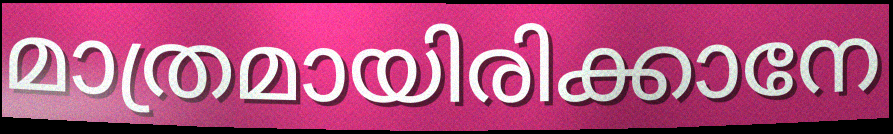
മാത്രമായിരിക്കാനേ